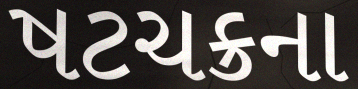
ષટચક્રના